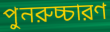
পুনরুচ্চারণ